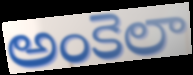
అంకెలా